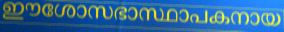
ഈശോസഭാസ്ഥാപകനായ